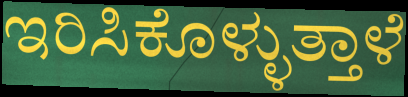
ಇರಿಸಿಕೊಳ್ಳುತ್ತಾಳೆ